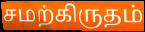
சமற்கிருதம்